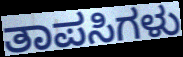
ತಾಪಸಿಗಳು